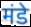
मंडे